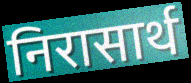
निरासार्थ